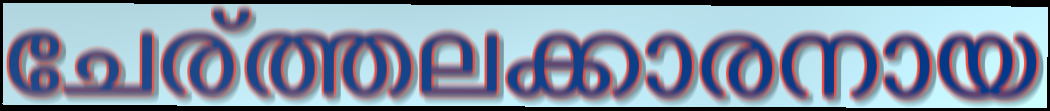
ചേര്ത്തലക്കാരനായ